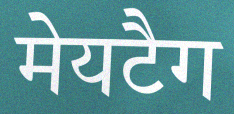
मेयटैग